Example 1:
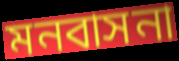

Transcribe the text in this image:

মনবাসনা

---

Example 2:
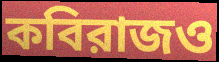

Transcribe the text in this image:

কবিরাজও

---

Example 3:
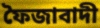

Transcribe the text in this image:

ফৈজাবাদী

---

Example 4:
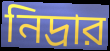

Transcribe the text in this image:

নিদ্রার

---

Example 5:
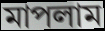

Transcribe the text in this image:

মাপলাম